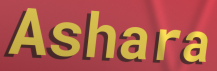
Ashara